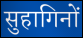
सुहागिनों